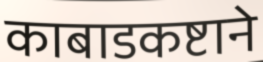
काबाडकष्टाने